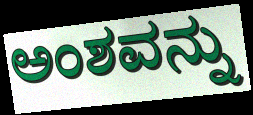
ಅಂಶವನ್ನು